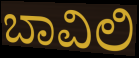
ಬಾವಿಲಿ